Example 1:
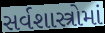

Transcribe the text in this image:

સર્વશાસ્ત્રોમાં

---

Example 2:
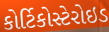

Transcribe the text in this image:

કોર્ટિકોસ્ટેરોઇડ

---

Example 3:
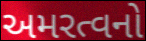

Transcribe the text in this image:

અમરત્વનો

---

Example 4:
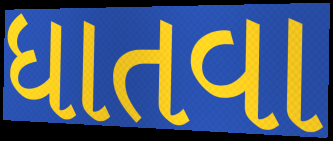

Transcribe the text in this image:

ધાતવા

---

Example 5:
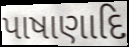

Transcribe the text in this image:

પાષાણાદિ